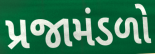
પ્રજામંડળો